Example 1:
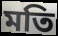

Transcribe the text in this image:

মতি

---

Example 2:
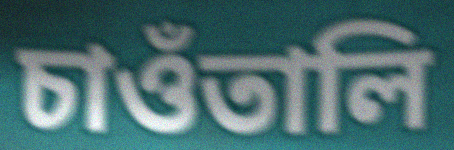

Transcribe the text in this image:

চাওঁতালি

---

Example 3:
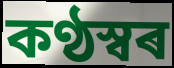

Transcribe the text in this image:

কণ্ঠস্বৰ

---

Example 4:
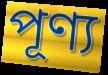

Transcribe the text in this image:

পূণ্য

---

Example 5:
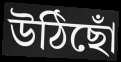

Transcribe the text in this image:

উঠিছোঁ